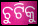
ଚୁଟିକୁ